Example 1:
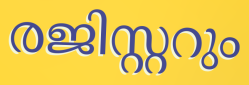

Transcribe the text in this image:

രജിസ്റ്ററും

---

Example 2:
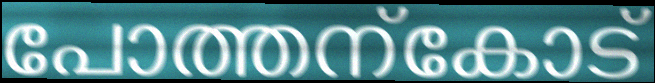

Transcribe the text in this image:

പോത്തന്കോട്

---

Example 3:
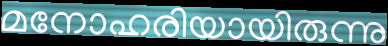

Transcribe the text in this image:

മനോഹരിയായിരുന്നു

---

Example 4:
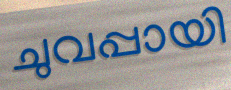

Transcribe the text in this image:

ചുവപ്പായി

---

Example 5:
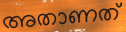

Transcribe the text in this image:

അതാണത്